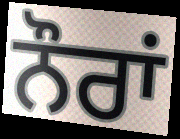
ਨੌਰਾਂ